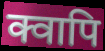
क्वापि